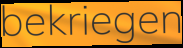
bekriegen